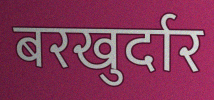
बरखुर्दार